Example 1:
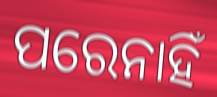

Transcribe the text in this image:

ପରେନାହିଁ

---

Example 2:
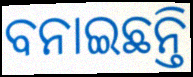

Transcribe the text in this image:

ବନାଇଛନ୍ତି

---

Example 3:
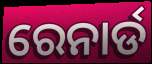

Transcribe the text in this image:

ରେନାର୍ଡ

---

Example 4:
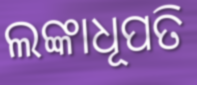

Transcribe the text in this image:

ଲଙ୍କାଧୂପତି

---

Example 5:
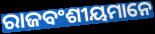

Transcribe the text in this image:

ରାଜବଂଶୀୟମାନେ